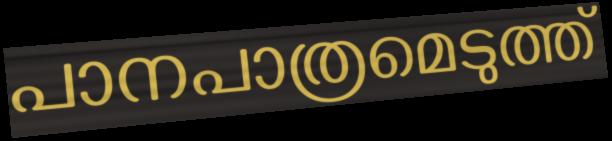
പാനപാത്രമെടുത്ത്